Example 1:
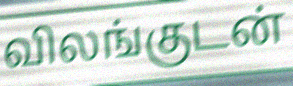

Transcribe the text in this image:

விலங்குடன்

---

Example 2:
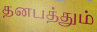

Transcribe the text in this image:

தனபத்தும்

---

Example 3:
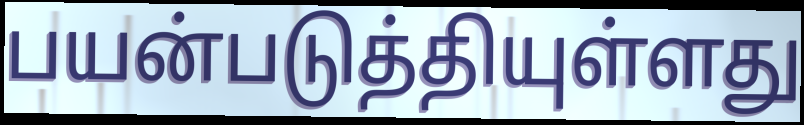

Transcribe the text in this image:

பயன்படுத்தியுள்ளது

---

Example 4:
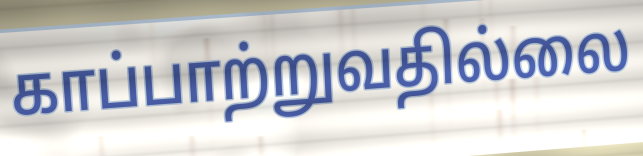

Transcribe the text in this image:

காப்பாற்றுவதில்லை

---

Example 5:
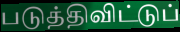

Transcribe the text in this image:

படுத்திவிட்டுப்